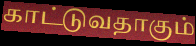
காட்டுவதாகும்